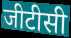
जीटीसी